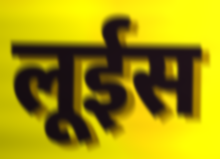
लूईस